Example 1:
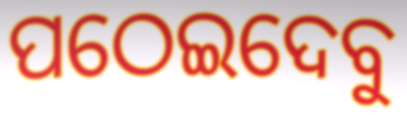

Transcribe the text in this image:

ପଠେଇଦେବୁ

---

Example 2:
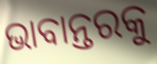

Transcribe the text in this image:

ଭାବାନ୍ତରକୁ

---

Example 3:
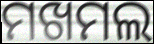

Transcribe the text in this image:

ମଖମଲ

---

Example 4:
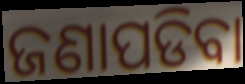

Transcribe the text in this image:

ଜଣାପଡିବା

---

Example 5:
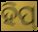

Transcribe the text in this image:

ହିପ୍